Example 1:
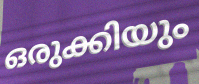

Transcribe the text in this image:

ഒരുക്കിയും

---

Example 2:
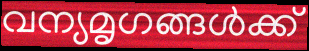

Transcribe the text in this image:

വന്യമൃഗങ്ങൾക്ക്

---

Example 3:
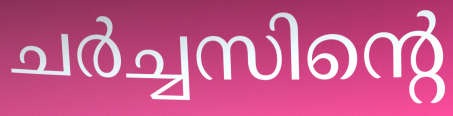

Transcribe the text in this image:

ചർച്ചസിന്റെ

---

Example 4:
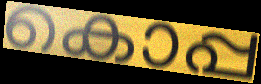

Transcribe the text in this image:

കൊപ്പ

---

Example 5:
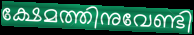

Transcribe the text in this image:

ക്ഷേമത്തിനുവേണ്ടി